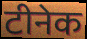
टीनेक